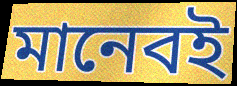
মানেবই